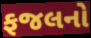
ફજલનો